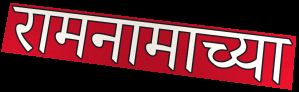
रामनामाच्या